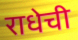
राधेची